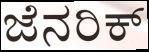
ಜೆನರಿಕ್